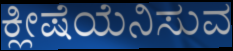
ಕ್ಲೀಷೆಯೆನಿಸುವ